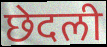
छेदली